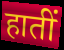
हातीं